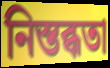
নিস্তব্ধতা